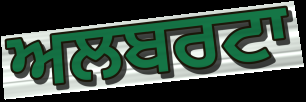
ਅਲਬਰਟਾ